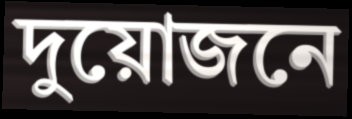
দুয়োজনে